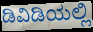
ಡಿವಿಡಿಯಲ್ಲಿ